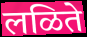
लळिते